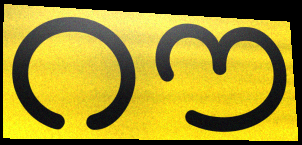
റൗ